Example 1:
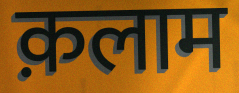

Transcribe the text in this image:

क़लाम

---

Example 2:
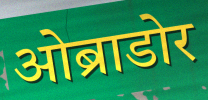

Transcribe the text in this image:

ओब्राडोर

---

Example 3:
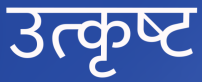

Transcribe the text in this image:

उत्‍कृष्‍ट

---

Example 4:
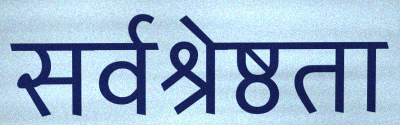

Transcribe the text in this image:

सर्वश्रेष्ठता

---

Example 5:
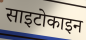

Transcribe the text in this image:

साइटोकाइन